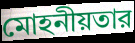
মোহনীয়তার